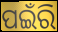
ପଇଁରି